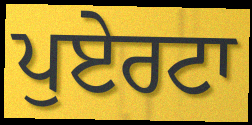
ਪੁਏਰਟਾ